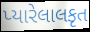
પ્યારેલાલકૃત